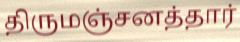
திருமஞ்சனத்தார்